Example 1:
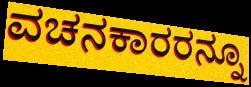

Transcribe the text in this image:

ವಚನಕಾರರನ್ನೂ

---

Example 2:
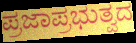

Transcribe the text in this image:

ಪ್ರಜಾಪ್ರಭುತ್ವದ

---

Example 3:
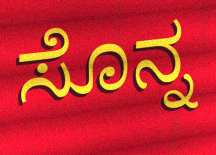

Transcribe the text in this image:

ಸೊನ್ನ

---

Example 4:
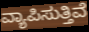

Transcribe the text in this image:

ವ್ಯಾಪಿಸುತ್ತಿವೆ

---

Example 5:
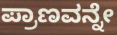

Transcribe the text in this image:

ಪ್ರಾಣವನ್ನೇ